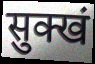
सुक्खं